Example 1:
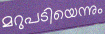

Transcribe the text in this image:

മറുപടിയെന്നും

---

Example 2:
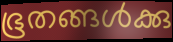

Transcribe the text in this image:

ഭൂതങ്ങൾക്കു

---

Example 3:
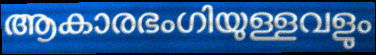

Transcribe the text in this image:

ആകാരഭംഗിയുള്ളവളും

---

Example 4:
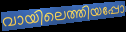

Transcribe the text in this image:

വായിലെത്തിയപ്പോ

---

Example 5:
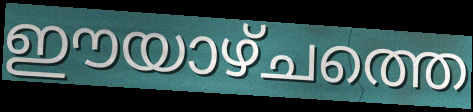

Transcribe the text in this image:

ഈയാഴ്ചത്തെ